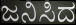
ಜನಿಸಿದ